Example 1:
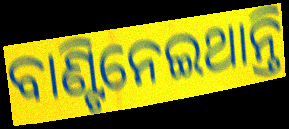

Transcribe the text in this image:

ବାଣ୍ଟିନେଇଥାନ୍ତି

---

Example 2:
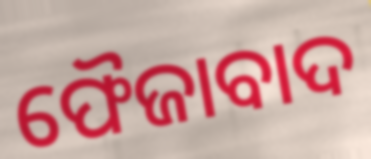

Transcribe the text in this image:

ଫୈଜାବାଦ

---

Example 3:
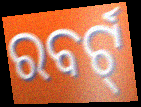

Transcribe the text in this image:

ରବର୍ଟ୍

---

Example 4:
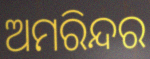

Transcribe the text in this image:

ଅମରିନ୍ଦର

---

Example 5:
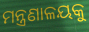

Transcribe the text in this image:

ମନ୍ତ୍ରଣାଳୟକୁ